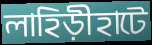
লাহিড়ীহাটে